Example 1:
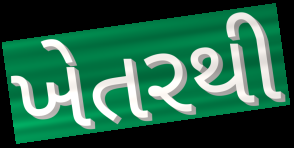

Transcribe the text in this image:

ખેતરથી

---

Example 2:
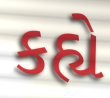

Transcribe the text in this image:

કહ્યે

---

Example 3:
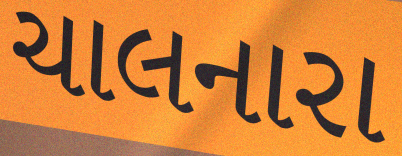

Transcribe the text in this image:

ચાલનારા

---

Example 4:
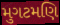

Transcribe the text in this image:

મુગટમણિ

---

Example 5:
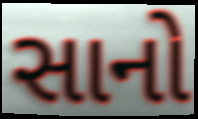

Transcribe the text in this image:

સાનો